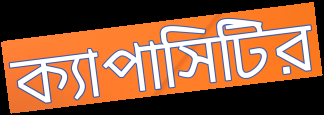
ক্যাপাসিটির